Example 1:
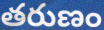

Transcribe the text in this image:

తరుణం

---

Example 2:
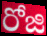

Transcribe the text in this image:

రోజి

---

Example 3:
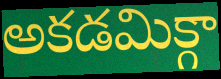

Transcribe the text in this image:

అకడమిక్గా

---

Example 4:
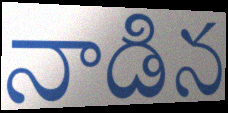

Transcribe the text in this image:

నాడిన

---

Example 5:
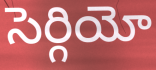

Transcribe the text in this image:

సెర్గియో